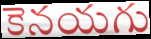
కెనయగు